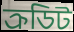
ক্রডিট